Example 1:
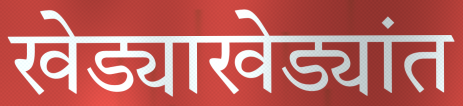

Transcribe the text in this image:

खेड्याखेड्यांत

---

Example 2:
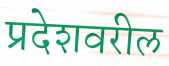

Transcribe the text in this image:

प्रदेशवरील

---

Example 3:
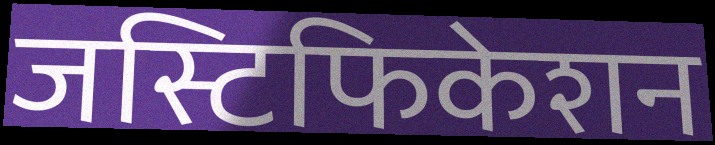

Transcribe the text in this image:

जस्टिफिकेशन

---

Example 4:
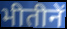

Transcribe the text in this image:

भीतीनें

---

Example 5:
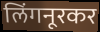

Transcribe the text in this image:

लिंगनूरकर